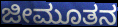
ಜೀಮೂತನ